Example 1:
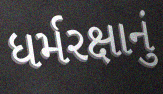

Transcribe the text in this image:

ધર્મરક્ષાનું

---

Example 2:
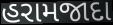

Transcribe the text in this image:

હરામજાદા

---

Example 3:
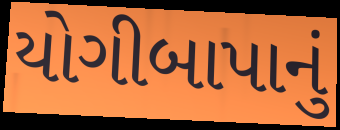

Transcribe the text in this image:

યોગીબાપાનું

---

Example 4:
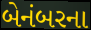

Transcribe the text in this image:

બેનંબરના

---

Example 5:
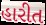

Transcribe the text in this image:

હારીત